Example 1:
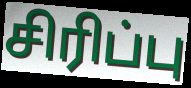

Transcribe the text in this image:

சிரிப்பு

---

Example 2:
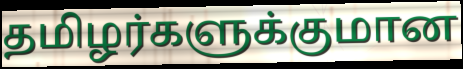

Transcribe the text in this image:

தமிழர்களுக்குமான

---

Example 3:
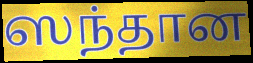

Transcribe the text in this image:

ஸந்தான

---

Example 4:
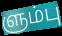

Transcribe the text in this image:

ளும்பு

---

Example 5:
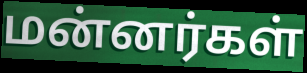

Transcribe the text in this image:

மன்னர்கள்